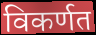
विकर्णत